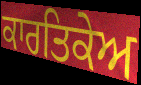
ਕਾਰਤਿਕੇਅ